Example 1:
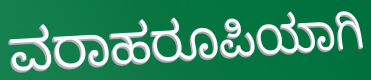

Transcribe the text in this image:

ವರಾಹರೂಪಿಯಾಗಿ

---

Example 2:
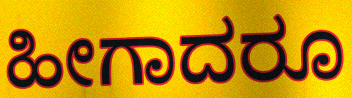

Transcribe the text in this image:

ಹೀಗಾದರೂ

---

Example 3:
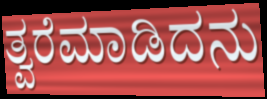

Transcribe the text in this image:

ತ್ವರೆಮಾಡಿದನು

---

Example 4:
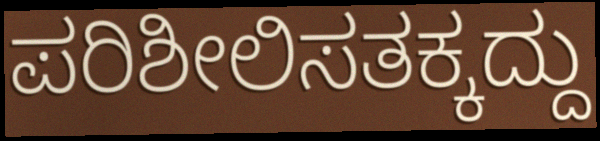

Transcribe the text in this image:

ಪರಿಶೀಲಿಸತಕ್ಕದ್ದು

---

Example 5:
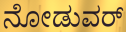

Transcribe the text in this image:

ನೋಡುವರ್